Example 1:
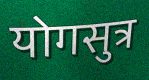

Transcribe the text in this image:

योगसुत्र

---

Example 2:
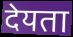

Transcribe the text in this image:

देयता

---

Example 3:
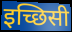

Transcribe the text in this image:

इच्छिसी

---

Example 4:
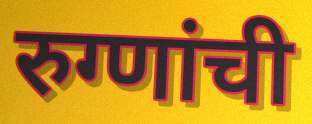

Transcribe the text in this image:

रुग्णांची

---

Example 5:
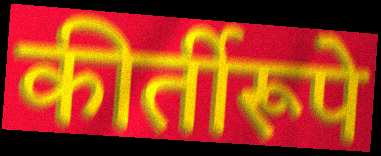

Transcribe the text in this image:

कीर्तीरूपे